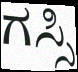
ಗಸ್ಸಿ